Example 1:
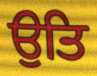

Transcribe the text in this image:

ਉਤਿ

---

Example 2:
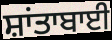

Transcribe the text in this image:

ਸ਼ਾਂਤਾਬਾਈ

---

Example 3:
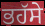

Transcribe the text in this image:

ਭਹੱਸੇ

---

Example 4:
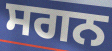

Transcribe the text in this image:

ਸਗਨ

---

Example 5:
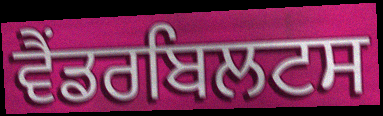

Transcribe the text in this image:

ਵੈਂਡਰਬਿਲਟਸ